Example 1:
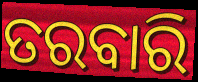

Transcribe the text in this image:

ତରବାରି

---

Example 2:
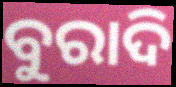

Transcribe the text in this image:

ବୁରାଦି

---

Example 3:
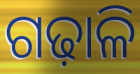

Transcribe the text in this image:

ଗଢ଼ାଳି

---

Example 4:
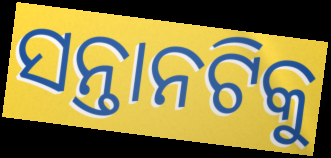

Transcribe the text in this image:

ସନ୍ତାନଟିକୁ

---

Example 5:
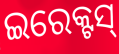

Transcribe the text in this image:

ଇରେକ୍ଟସ୍